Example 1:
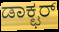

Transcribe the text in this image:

ಡಾಕ್ಟರ್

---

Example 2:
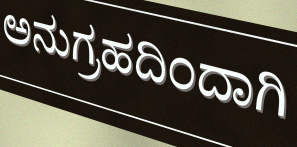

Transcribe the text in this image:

ಅನುಗ್ರಹದಿಂದಾಗಿ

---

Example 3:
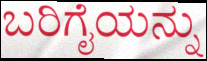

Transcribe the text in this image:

ಬರಿಗೈಯನ್ನು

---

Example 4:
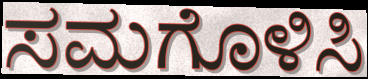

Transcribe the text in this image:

ಸಮಗೊಳಿಸಿ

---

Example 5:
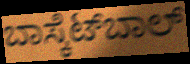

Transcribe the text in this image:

ಬಾಸ್ಕೆಟ್‍ಬಾಲ್